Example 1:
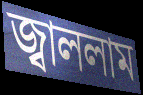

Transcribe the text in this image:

জ্বাললাম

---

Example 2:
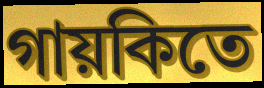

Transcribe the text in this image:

গায়কিতে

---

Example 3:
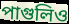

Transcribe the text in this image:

পাগুলিও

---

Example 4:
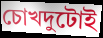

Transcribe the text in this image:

চোখদুটোই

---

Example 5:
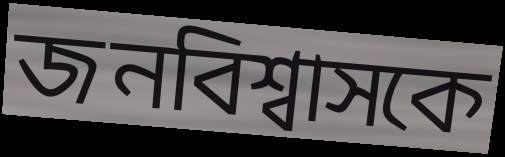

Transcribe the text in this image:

জনবিশ্বাসকে